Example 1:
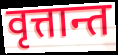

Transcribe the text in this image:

वृत्तान्त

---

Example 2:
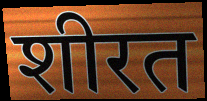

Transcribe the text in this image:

शीरत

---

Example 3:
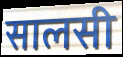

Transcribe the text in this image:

सालसी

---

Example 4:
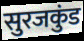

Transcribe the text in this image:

सुरजकुंड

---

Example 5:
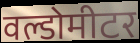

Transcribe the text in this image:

वल्डोमीटर